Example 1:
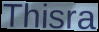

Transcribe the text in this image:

Thisra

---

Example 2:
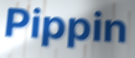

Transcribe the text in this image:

Pippin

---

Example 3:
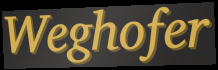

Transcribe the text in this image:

Weghofer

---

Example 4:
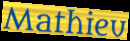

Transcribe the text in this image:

Mathieu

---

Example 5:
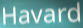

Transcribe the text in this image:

Havard